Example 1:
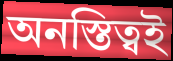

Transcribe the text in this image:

অনস্তিত্বই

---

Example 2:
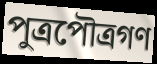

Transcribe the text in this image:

পুত্রপৌত্রগণ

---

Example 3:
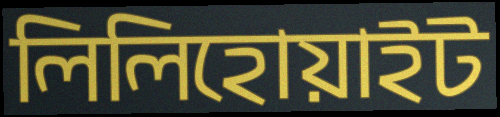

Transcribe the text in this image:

লিলিহোয়াইট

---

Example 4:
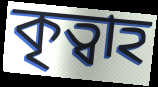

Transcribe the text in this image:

কৃত্বাহ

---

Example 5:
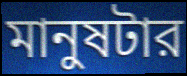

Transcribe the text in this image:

মানুষটার